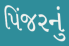
પિંજરનું